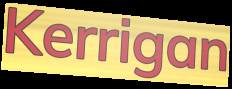
Kerrigan